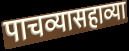
पाचव्यासहाव्या